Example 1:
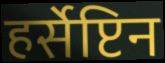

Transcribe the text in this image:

हर्सेप्टिन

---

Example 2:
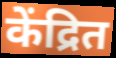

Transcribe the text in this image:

केंद्रित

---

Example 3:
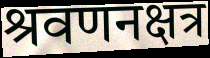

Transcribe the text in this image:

श्रवणनक्षत्र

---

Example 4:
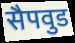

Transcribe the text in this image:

सैपवुड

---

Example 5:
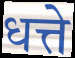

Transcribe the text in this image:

धत्ते